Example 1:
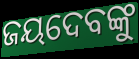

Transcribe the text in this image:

ଜୟଦେବଙ୍କୁ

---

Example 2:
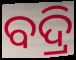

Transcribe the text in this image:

ବଦ୍ରି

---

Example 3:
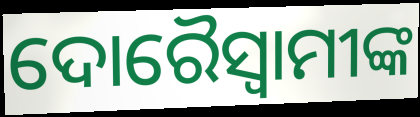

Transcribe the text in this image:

ଦୋରୈସ୍ବାମୀଙ୍କ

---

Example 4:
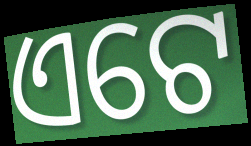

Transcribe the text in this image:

ଏଟେ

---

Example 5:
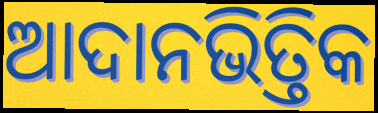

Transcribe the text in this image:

ଆଦାନଭିତ୍ତିକ